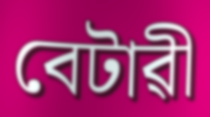
বেটাৱী